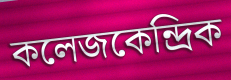
কলেজকেন্দ্রিক